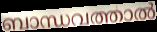
ബാന്ധവത്താൽ